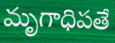
మృగాధిపతే